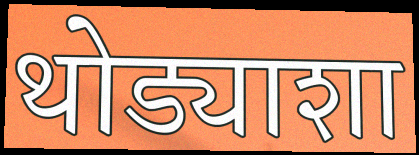
थोड्याशा